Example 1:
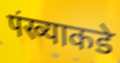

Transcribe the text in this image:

पंख्याकडे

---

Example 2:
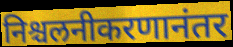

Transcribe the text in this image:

निश्चलनीकरणानंतर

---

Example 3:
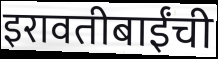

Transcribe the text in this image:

इरावतीबाईंची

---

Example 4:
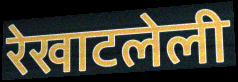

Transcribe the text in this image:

रेखाटलेली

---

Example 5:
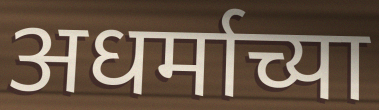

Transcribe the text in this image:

अधर्माच्या